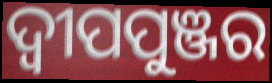
ଦ୍ଵୀପପୁଞ୍ଜର